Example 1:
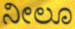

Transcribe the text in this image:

ನೀಲೂ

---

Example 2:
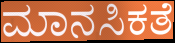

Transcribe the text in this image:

ಮಾನಸಿಕತೆ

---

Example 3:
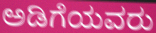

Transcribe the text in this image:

ಅಡಿಗೆಯವರು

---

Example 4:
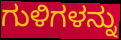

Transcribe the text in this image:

ಗುಳಿಗಳನ್ನು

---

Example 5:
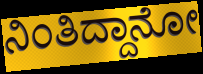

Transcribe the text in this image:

ನಿಂತಿದ್ದಾನೋ